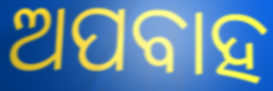
ଅପବାହ